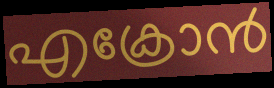
എക്രോൻ